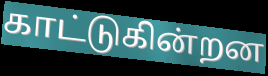
காட்டுகின்றன